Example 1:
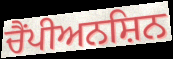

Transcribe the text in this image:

ਚੈਂਪੀਅਨਸ਼ਿਨ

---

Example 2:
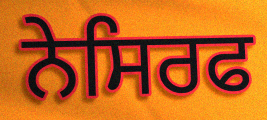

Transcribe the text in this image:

ਨੇਸਿਰਫ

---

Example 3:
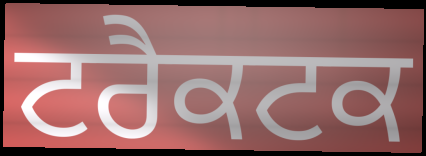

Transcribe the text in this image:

ਟਰੈਕਟਕ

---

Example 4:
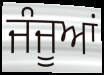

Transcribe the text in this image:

ਜੰਜੂਆਂ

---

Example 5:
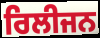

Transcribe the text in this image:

ਰਿਲੀਜਨ